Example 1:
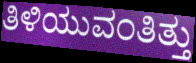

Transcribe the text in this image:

ತಿಳಿಯುವಂತಿತ್ತು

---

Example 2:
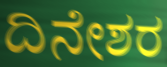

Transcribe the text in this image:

ದಿನೇಶರ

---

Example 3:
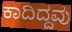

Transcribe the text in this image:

ಕಾದಿದ್ದವು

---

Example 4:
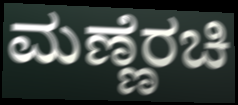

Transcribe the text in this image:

ಮಣ್ಣೆರಚಿ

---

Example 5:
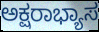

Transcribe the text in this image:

ಅಕ್ಷರಾಭ್ಯಾಸ